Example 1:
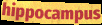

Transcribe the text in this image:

hippocampus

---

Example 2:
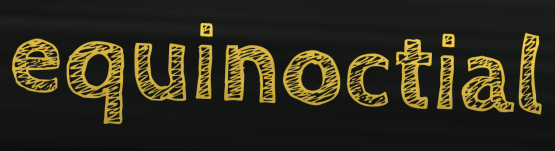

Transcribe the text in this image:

equinoctial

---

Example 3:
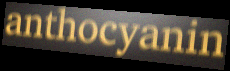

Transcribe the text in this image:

anthocyanin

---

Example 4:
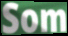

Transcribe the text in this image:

Som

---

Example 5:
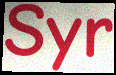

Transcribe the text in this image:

Syr